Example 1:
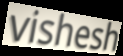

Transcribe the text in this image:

vishesh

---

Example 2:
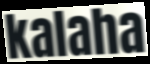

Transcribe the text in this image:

kalaha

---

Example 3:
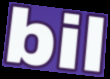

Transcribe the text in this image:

bil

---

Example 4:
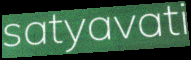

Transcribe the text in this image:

satyavati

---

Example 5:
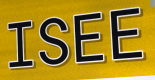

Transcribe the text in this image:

ISEE